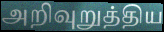
அறிவுறுத்திய